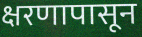
क्षरणापासून